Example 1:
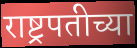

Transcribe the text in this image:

राष्ट्रपतीच्या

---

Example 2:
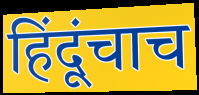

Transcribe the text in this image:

हिंदूंचाच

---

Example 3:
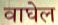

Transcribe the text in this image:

वाघेल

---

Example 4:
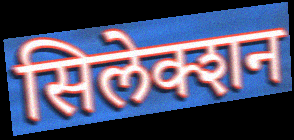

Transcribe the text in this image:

सिलेक्शन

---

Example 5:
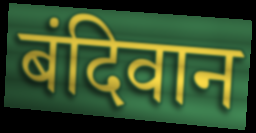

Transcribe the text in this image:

बंदिवान